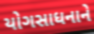
યોગસાધનાને